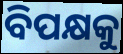
ବିପକ୍ଷକୁ